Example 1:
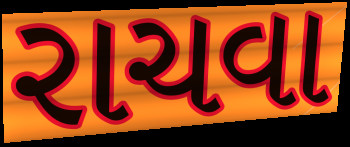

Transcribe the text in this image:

રાચવા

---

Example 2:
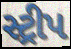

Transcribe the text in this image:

સ્ટ્રીપ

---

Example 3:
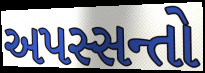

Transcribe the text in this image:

અપસ્સન્તો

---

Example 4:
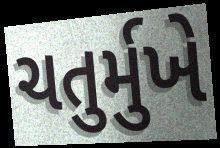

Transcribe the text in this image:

ચતુર્મુખે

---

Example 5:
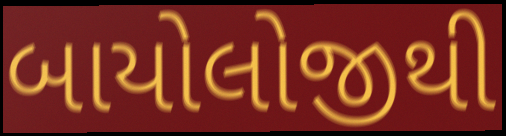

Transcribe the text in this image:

બાયોલોજીથી